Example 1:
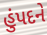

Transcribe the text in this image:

હુંપદને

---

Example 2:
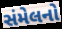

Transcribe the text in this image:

સંમેલનો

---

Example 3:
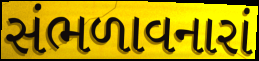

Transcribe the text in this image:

સંભળાવનારાં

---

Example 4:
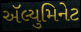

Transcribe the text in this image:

ઍલ્યુમિનેટ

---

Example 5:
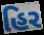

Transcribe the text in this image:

હિર